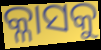
କ୍ଳାସକୁ